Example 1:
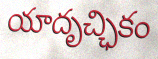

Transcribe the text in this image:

యాదృచ్ఛికం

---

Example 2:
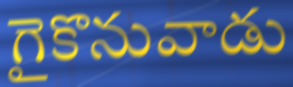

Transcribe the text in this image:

గైకొనువాడు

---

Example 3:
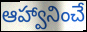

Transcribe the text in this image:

ఆహ్వానించే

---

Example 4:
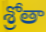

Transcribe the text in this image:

శ్రోతా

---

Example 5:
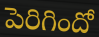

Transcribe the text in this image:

పెరిగిందో